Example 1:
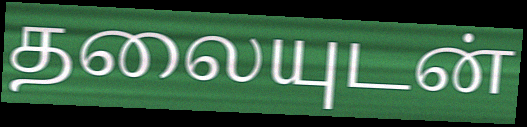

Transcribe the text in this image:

தலையுடன்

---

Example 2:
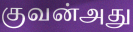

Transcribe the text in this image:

குவன்அது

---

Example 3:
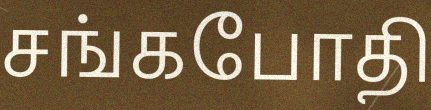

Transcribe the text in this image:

சங்கபோதி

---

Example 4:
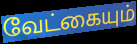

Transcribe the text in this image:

வேட்கையும்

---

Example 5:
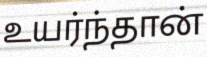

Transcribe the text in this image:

உயர்ந்தான்